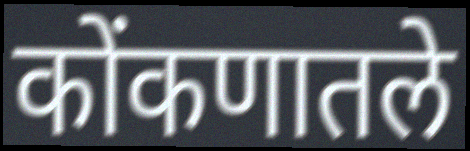
कोंकणातले